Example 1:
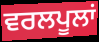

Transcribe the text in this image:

ਵਰਲਪੂਲਾਂ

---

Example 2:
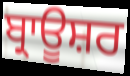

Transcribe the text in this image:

ਬ੍ਰਾਊਸ਼ਰ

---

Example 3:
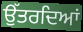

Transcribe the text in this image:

ਉੱਤਰਦਿਆਂ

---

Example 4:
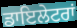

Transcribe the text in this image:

ਡਾਇਲੇਟਰਾਂ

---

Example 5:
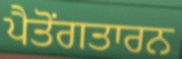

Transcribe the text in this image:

ਪੈਤੋਂਗਤਾਰਨ